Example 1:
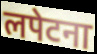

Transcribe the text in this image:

लपेटना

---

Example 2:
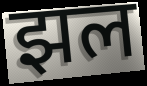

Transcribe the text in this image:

झल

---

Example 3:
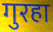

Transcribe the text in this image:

गुरहा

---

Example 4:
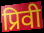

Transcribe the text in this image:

प्रिवी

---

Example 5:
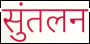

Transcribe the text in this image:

सुंतलन